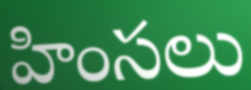
హింసలు